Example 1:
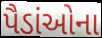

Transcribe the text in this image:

પૈડાંઓના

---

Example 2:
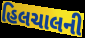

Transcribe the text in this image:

હિલચાલની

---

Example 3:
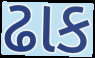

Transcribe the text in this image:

ઢાક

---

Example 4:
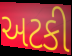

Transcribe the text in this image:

અટકી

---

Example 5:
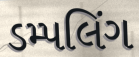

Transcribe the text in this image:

ડમ્પલિંગ